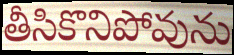
తీసికొనిపోవును